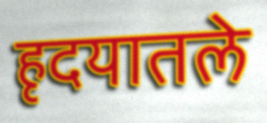
हृदयातले